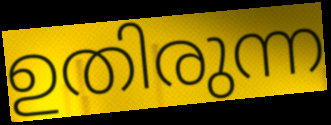
ഉതിരുന്ന